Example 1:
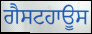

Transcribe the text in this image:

ਗੈਸਟਹਾਊਸ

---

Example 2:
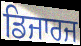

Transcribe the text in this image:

ਡਿਜਾਰਜ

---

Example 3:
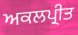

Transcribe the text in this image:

ਅਕਲਪ੍ਰੀਤ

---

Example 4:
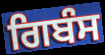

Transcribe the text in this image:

ਗਿਬੰਸ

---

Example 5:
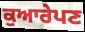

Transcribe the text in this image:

ਕੁਆਰੇਪਣ